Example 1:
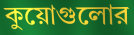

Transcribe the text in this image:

কুয়োগুলোর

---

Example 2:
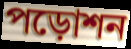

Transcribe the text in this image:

পড়োশন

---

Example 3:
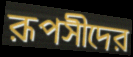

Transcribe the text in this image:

রূপসীদের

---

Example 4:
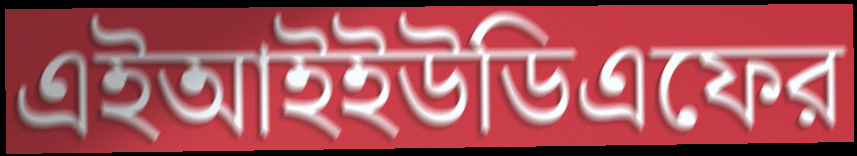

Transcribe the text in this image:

এইআইইউডিএফের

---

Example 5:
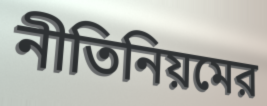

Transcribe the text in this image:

নীতিনিয়মের